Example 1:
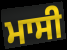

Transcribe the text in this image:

ਮਾਸੀ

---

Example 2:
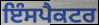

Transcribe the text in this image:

ਇੰਸਪੈਕਟਰ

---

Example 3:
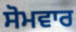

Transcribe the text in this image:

ਸੋਮਵਾਰ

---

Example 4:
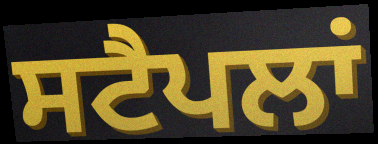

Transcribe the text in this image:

ਸਟੈਪਲਾਂ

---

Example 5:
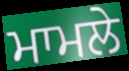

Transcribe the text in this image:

ਮਾਮਲੇ